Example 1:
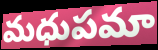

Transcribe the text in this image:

మధుపమా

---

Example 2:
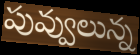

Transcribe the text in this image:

పువ్వులున్న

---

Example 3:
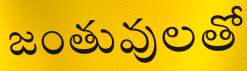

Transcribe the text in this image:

జంతువులతో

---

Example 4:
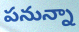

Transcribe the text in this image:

పనున్నా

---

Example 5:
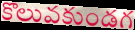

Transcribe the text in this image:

కొలువకుండగ